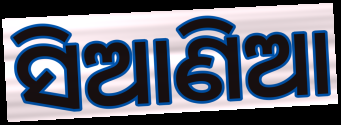
ସିଆଣିଆ